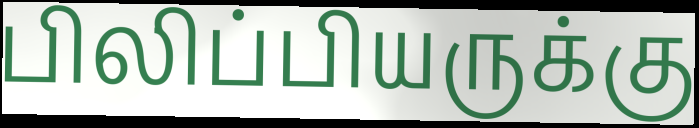
பிலிப்பியருக்கு